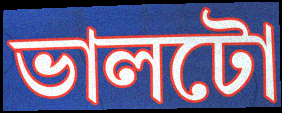
ভালটো